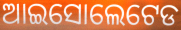
ଆଇସୋଲେଟେଡ